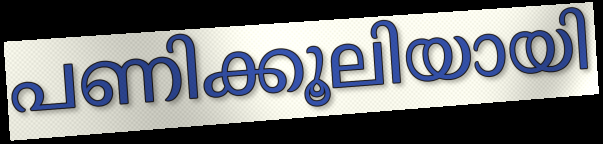
പണിക്കൂലിയായി